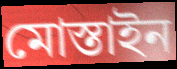
মোস্তাইন